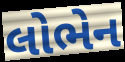
લોભેન